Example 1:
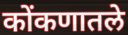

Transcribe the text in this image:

कोंकणातले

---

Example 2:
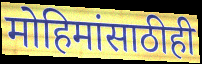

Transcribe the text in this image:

मोहिमांसाठीही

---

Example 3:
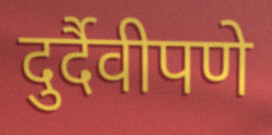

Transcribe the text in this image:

दुर्दैवीपणे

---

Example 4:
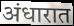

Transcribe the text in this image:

अंधारात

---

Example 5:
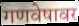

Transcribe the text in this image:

गणवेषावर